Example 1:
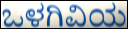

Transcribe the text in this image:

ಒಳಗಿವಿಯ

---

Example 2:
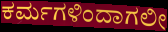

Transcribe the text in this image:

ಕರ್ಮಗಳಿಂದಾಗಲೀ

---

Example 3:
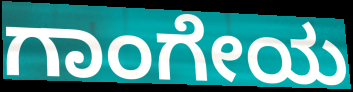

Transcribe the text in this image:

ಗಾಂಗೇಯ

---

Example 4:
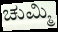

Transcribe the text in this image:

ಚುಮ್ಮಿ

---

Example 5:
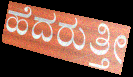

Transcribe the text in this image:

ಹೆದರುತ್ತೀ